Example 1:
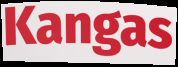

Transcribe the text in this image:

Kangas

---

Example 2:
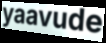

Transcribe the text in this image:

yaavude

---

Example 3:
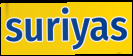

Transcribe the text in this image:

suriyas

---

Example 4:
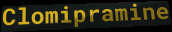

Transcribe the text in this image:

Clomipramine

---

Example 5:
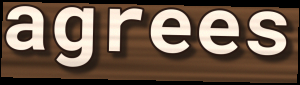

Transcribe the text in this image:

agrees